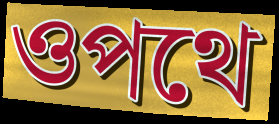
ওপথে